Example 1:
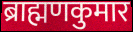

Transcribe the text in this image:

ब्राह्मणकुमार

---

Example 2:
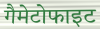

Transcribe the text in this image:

गैमेटोफाइट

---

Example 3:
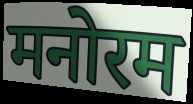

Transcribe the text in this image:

मनोरम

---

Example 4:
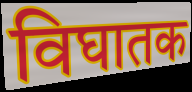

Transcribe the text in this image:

विघातक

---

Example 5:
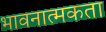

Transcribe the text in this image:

भावनात्मकता